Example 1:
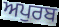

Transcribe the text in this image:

ਅਪੁਰਬ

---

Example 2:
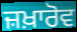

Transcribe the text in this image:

ਜ਼ਖ਼ਾਰੋਵ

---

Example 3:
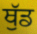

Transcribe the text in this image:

ਥੁੱਡ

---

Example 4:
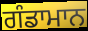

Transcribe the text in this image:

ਗੰਡਾਮਾਨ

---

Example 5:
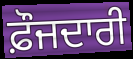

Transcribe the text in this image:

ਫ਼ੌਜਦਾਰੀ